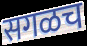
सगळच